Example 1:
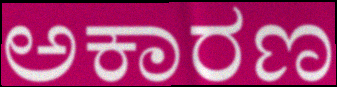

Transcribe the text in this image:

ಅಕಾರಣ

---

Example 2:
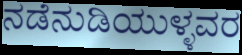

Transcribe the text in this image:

ನಡೆನುಡಿಯುಳ್ಳವರ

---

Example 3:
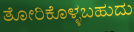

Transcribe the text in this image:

ತೋರಿಕೊಳ್ಳಬಹುದು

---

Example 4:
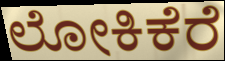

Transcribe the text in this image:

ಲೋಕಿಕೆರೆ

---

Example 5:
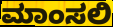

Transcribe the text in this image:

ಮಾಂಸಲಿ